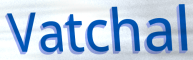
Vatchal